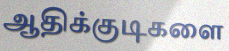
ஆதிக்குடிகளை